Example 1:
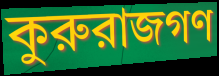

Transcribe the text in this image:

কুরুরাজগণ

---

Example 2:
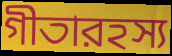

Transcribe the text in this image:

গীতারহস্য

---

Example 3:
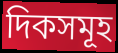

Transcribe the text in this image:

দিকসমূহ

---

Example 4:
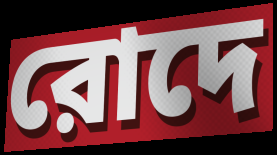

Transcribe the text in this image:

রোদে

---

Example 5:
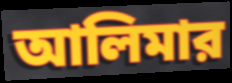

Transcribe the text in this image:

আলিমার